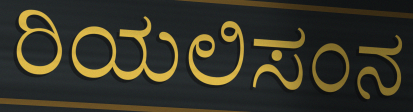
ರಿಯಲಿಸಂನ